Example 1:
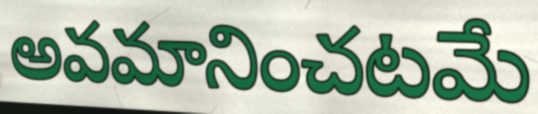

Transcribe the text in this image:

అవమానించటమే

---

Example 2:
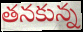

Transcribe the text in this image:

తనకున్న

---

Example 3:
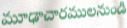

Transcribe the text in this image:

మూఢాచారములనుండి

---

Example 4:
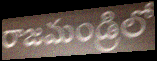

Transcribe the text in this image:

రాజమండ్రిలో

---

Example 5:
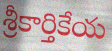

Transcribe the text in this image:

శ్రీకార్తికేయ